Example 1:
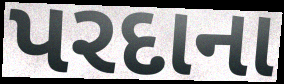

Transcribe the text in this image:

પરદાના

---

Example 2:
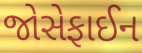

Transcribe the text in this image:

જોસેફાઈન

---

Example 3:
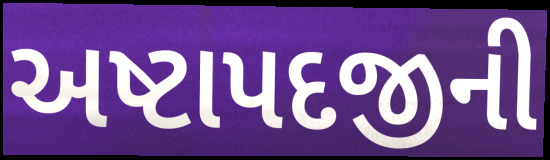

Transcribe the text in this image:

અષ્ટાપદજીની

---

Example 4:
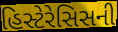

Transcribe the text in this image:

હિસ્ટેરેસિસની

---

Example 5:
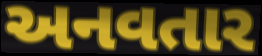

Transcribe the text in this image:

અનવતાર